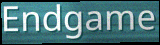
Endgame